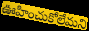
ఊహించుకోలేమని